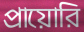
প্রায়োরি